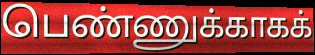
பெண்ணுக்காகக்